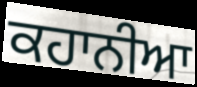
ਕਹਾਨੀਆ